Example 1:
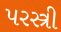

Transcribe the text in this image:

પરસ્ત્રી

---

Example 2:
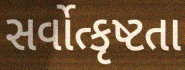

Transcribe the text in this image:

સર્વોત્કૃષ્ટતા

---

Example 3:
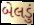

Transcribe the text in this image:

બેલડું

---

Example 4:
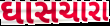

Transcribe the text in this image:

ઘાસચારા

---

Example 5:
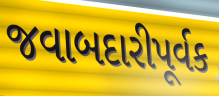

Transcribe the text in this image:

જવાબદારીપૂર્વક